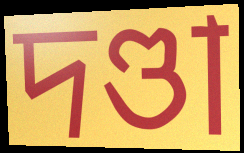
দণ্ডা